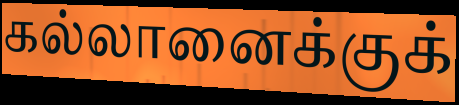
கல்லானைக்குக்